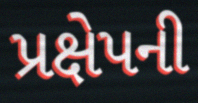
પ્રક્ષેપની